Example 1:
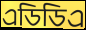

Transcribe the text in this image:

এডিডিএ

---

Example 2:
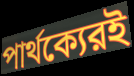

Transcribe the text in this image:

পার্থক্যেরই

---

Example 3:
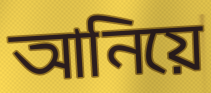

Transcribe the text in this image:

আনিয়ে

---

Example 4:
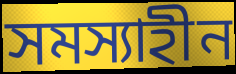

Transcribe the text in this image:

সমস্যাহীন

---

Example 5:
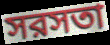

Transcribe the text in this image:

সরসতা